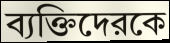
ব্যক্তিদেরকে